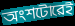
অংশটোৱেই